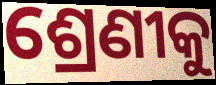
ଶ୍ରେଣୀକୁ